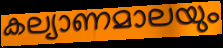
കല്യാണമാലയും